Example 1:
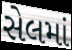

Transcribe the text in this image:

સેલમાં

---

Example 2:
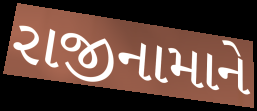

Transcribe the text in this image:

રાજીનામાને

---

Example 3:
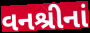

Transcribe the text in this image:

વનશ્રીનાં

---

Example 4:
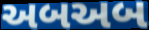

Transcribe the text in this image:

અબઅબ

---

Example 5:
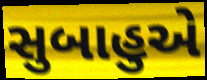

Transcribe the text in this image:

સુબાહુએ